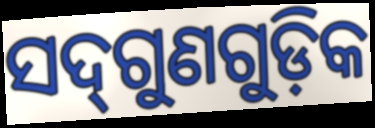
ସଦ୍‌ଗୁଣଗୁଡ଼ିକ